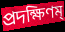
প্রদক্ষিণম্